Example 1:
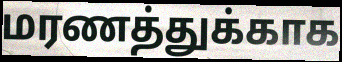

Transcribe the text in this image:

மரணத்துக்காக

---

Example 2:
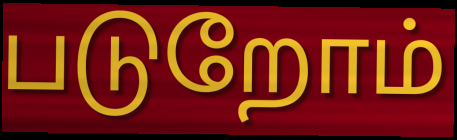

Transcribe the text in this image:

படுறோம்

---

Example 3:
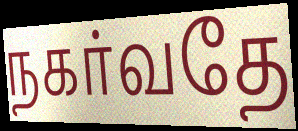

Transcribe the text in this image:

நகர்வதே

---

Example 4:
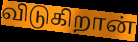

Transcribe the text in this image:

விடுகிறான்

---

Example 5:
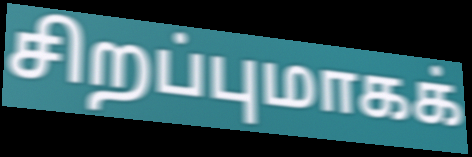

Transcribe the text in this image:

சிறப்புமாகக்